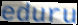
eduru